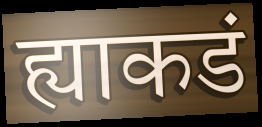
ह्याकडं